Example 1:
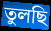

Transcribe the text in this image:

তুলছি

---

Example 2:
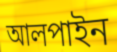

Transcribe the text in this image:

আলপাইন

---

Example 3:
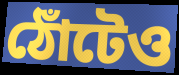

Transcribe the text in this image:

ঠোঁটেও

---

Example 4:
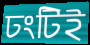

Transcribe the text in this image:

ঢংটিই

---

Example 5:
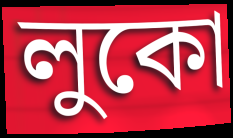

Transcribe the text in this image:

লুকো